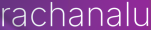
rachanalu